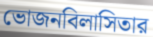
ভোজনবিলাসিতার